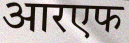
आरएफ